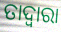
ତାଦ୍ଵାରା